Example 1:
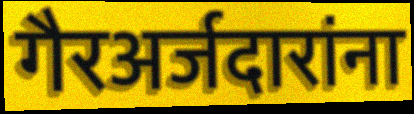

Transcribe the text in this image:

गैरअर्जदारांना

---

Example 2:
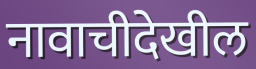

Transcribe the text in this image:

नावाचीदेखील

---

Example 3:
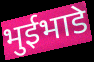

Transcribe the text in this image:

भुईभाडे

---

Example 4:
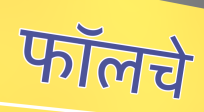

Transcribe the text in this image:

फॉलचे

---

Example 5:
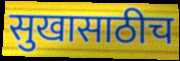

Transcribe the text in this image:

सुखासाठीच